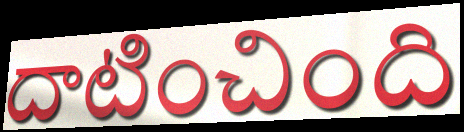
దాటించింది